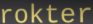
rokter